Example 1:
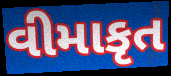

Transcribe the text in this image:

વીમાકૃત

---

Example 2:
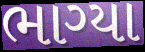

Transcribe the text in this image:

ભાગ્યા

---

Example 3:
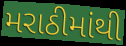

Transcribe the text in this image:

મરાઠીમાંથી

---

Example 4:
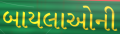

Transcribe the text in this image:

બાયલાઓની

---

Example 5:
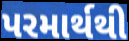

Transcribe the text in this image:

પરમાર્થથી